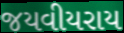
જયવીયરાય